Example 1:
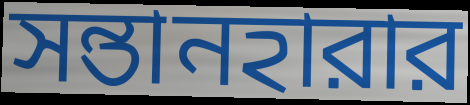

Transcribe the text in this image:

সন্তানহারার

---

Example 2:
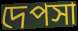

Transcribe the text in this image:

দেপসা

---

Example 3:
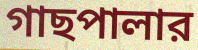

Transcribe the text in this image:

গাছপালার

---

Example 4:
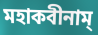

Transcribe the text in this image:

মহাকবীনাম্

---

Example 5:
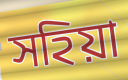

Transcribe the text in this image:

সহিয়া